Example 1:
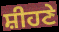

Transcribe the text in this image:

ਸ਼ੀਹਣੇ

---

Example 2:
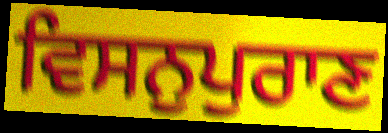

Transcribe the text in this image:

ਵਿਸਨੁਪੁਰਾਣ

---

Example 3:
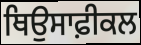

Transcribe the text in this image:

ਥਿਉਸਾਫ਼ੀਕਲ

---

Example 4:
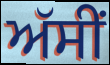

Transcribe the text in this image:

ਅੱਸੀਂ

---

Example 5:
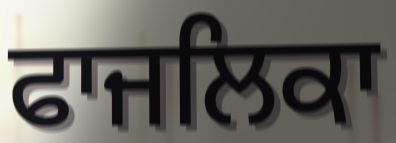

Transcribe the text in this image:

ਫਾਜਲਿਕਾ